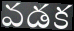
వడక